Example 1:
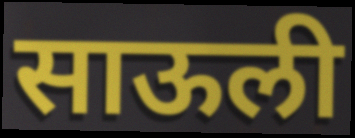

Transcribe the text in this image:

साऊली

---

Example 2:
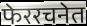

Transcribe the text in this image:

फेररचनेत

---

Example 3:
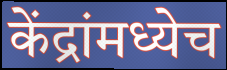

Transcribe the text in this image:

केंद्रांमध्येच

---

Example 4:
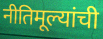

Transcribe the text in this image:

नीतिमूल्यांची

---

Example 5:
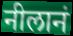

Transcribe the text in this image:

नीलानं